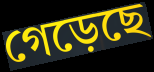
গেড়েছে